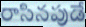
రాసినపుడే